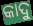
କାଦୁ